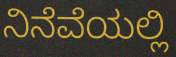
ನಿನೆವೆಯಲ್ಲಿ